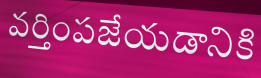
వర్తింపజేయడానికి